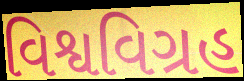
વિશ્વવિગ્રહ